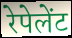
रेपेलेंट